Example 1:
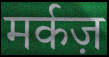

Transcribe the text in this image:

मर्कज़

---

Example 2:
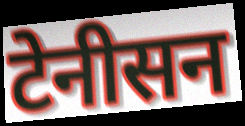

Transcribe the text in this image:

टेनीसन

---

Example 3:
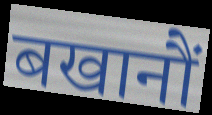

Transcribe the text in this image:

बखानौं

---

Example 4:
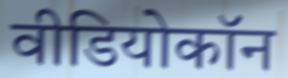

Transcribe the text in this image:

वीडियोकॉन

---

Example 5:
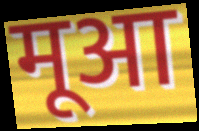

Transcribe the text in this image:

मूआ